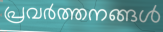
പ്രവർത്തനങ്ങൾ